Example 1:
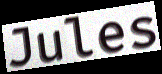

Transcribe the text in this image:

Jules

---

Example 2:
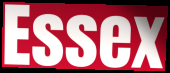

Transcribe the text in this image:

Essex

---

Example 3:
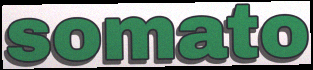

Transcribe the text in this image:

somato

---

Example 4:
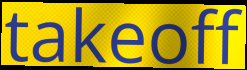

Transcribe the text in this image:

takeoff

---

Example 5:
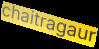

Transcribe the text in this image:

chaitragaur